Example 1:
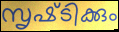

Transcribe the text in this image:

സൃഷ്‌ടിക്കും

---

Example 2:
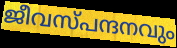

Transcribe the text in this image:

ജീവസ്പന്ദനവും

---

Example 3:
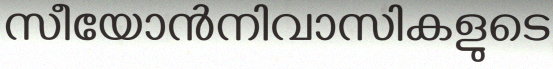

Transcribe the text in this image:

സീയോൻനിവാസികളുടെ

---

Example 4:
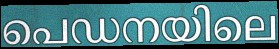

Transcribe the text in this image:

പെഡനയിലെ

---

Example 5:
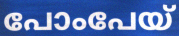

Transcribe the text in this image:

പോംപേയ്